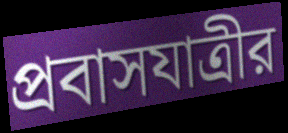
প্রবাসযাত্রীর